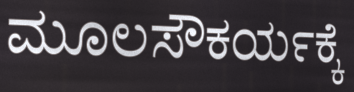
ಮೂಲಸೌಕರ್ಯಕ್ಕೆ